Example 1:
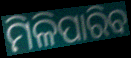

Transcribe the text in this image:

ମିଳିପାରିବ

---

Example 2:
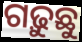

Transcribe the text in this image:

ଗଢ଼ୁଛୁ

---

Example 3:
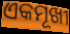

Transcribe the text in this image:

ଏକମୂଖୀ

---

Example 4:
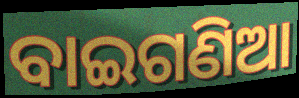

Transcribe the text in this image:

ବାଇଗଣିଆ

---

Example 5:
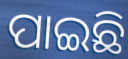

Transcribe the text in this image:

ପାଇଛି